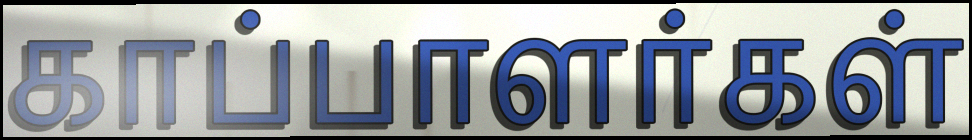
காப்பாளர்கள்